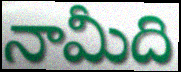
నామీది